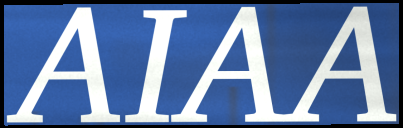
AIAA